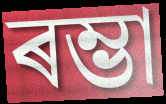
ৰম্ভা